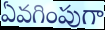
ఏవగింపుగా